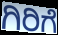
ಗಿರಿಗೆ